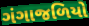
ગંગાજળિયો